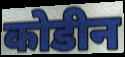
कोडीन